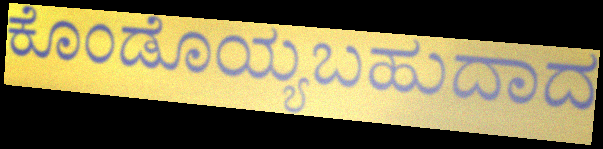
ಕೊಂಡೊಯ್ಯಬಹುದಾದ